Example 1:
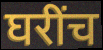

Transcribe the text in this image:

घरींच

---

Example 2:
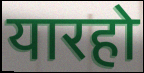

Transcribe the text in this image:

यारहो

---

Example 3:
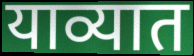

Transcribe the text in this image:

याव्यात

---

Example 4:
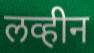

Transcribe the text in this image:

लव्हीन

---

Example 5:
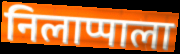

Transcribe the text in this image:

निलाप्पाला